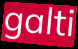
galti